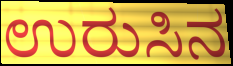
ಉರುಸಿನ